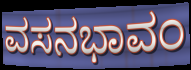
ವಸನಭಾವಂ